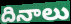
దినాలు